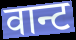
वान्ट